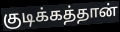
குடிக்கத்தான்